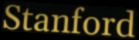
Stanford